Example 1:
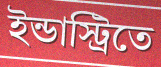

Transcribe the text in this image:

ইন্ডাস্ট্রিতে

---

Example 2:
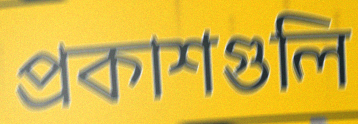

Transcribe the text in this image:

প্রকাশগুলি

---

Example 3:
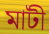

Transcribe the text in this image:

মাটী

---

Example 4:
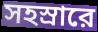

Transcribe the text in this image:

সহস্রারে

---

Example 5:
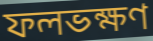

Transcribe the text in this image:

ফলভক্ষণ